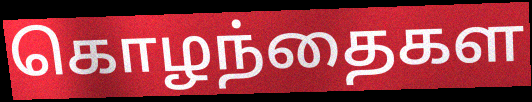
கொழந்தைகள